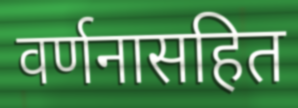
वर्णनासहित